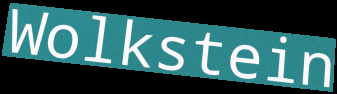
Wolkstein